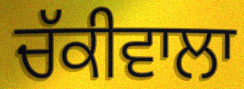
ਚੱਕੀਵਾਲਾ